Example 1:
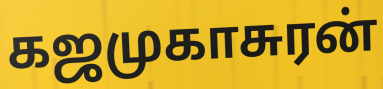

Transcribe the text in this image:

கஜமுகாசுரன்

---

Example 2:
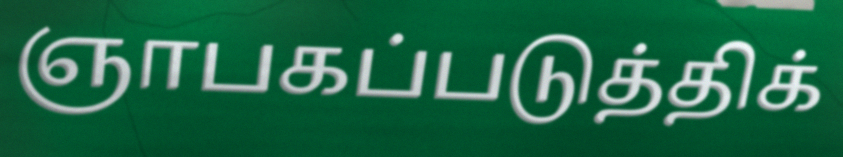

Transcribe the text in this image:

ஞாபகப்படுத்திக்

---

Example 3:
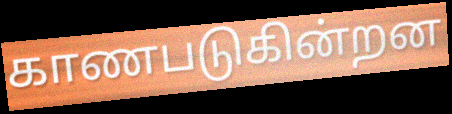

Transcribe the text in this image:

காணபடுகின்றன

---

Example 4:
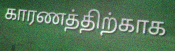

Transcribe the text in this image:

காரணத்திற்காக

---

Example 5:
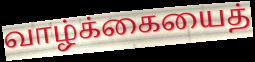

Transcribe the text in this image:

வாழ்க்கையைத்